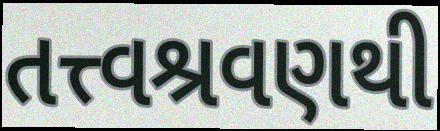
તત્ત્વશ્રવણથી